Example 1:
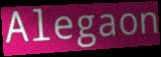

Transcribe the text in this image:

Alegaon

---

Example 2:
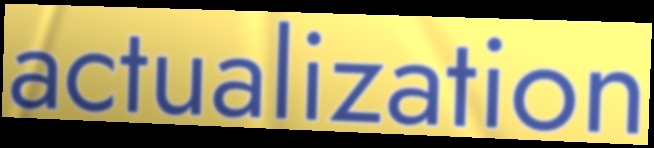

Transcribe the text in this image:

actualization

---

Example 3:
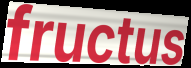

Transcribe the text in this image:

fructus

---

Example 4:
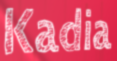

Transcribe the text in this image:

Kadia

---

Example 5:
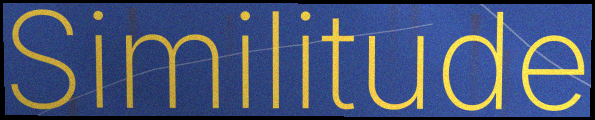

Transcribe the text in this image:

Similitude